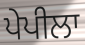
ਪੇਪੀਲਾ